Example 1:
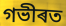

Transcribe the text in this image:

গভীৰত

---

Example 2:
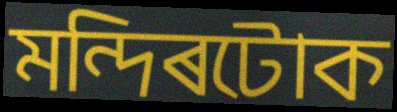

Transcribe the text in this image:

মন্দিৰটোক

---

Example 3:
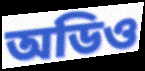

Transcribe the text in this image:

অডিও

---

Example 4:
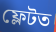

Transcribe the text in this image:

ফ্লেটত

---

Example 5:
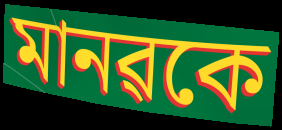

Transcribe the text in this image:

মানৱকে